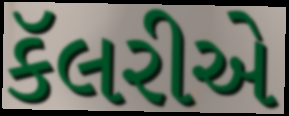
કૅલરીએ